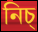
নিচ্